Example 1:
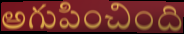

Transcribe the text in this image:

అగుపించింది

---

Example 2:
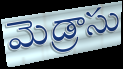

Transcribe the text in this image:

మెడ్రాసు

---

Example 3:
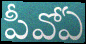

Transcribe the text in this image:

పీవోఏ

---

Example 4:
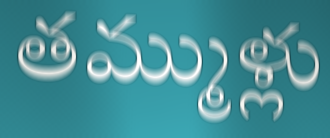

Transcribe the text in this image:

తమ్ముళ్లు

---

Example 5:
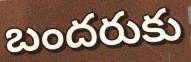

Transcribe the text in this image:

బందరుకు